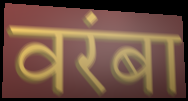
वरंबा